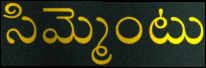
సిమ్మెంటు